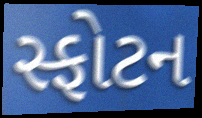
સ્ફોટન